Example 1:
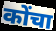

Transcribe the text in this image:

कोंचा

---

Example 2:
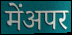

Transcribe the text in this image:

मेंअपर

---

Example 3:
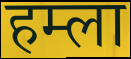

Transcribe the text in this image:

हम्ला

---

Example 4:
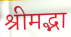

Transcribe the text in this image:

श्रीमद्भा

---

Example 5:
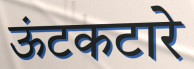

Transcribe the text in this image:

ऊंटकटारे